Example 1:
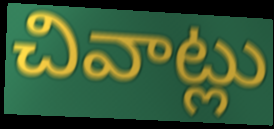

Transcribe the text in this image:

చివాట్లు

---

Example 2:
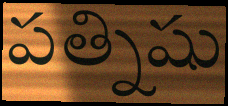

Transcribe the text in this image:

పత్నిషు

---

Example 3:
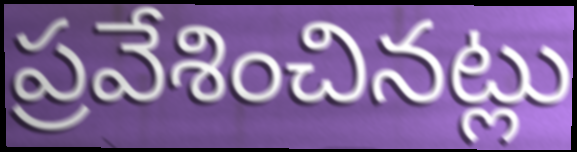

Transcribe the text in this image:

ప్రవేశించినట్లు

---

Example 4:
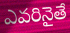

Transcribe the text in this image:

ఎవరినైతే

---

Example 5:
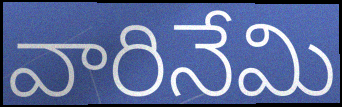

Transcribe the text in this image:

వారినేమి